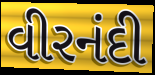
વીરનંદી